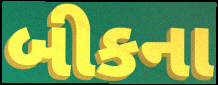
બીકના